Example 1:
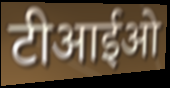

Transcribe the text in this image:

टीआईओ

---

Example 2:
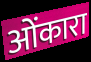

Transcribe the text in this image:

ओंकारा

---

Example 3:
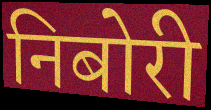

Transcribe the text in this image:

निबोरी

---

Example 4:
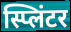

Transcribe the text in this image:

स्प्लिंटर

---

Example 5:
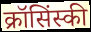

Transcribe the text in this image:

क्रॉसिंस्की